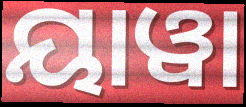
ୟାୱା